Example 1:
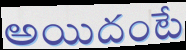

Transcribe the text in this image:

అయిదంటే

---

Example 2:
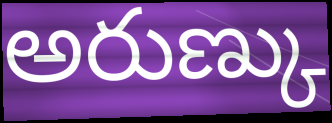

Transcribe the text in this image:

అరుణ్కు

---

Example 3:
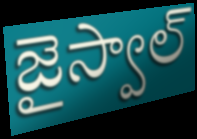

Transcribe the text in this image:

జైస్వాల్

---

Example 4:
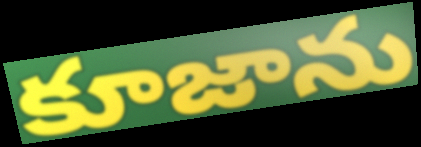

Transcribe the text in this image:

కూజాను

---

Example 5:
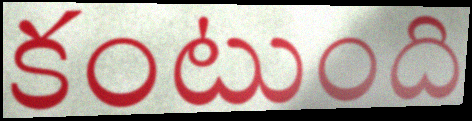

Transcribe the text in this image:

కంటుంది